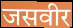
जसवीर